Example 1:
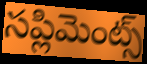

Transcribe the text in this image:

సప్లిమెంట్స్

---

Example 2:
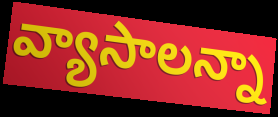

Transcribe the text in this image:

వ్యాసాలన్నా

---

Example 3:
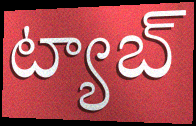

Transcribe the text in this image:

ట్యాబ్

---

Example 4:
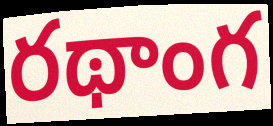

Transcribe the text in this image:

రథాంగ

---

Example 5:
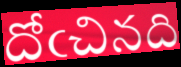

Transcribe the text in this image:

దోఁచినది